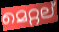
മെറ്റല്